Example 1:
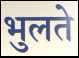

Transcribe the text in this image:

भुलते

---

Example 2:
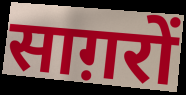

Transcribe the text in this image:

साग़रों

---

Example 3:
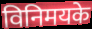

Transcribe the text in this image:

विनिमयके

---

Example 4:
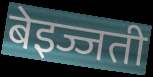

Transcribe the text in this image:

बेइज्जती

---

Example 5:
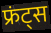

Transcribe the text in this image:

फ्रंट्स